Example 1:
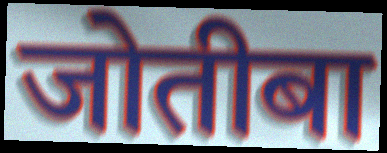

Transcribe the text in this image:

जोतीबा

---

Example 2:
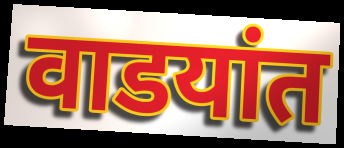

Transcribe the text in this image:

वाडयांत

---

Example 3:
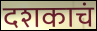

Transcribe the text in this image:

दशकाचं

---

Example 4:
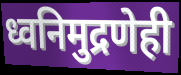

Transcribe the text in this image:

ध्वनिमुद्रणेही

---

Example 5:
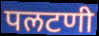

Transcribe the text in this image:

पलटणी